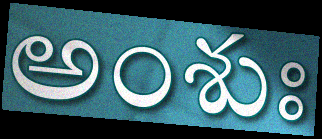
అంశుః